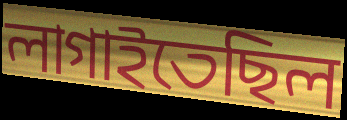
লাগাইতেছিল